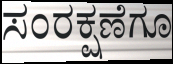
ಸಂರಕ್ಷಣೆಗೂ